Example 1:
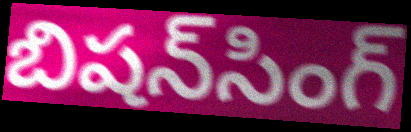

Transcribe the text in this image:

బిషన్‌సింగ్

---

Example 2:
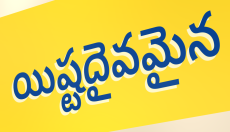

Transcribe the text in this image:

యిష్టదైవమైన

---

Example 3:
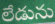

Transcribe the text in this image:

లేడును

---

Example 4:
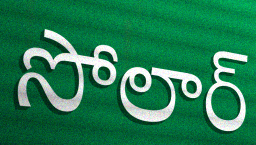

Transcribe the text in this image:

సోలార్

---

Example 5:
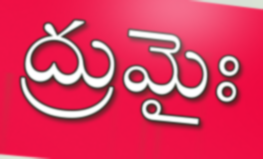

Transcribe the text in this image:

ద్రుమైః